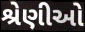
શ્રેણીઓ